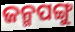
ଜନ୍ମପଙ୍ଗୁ